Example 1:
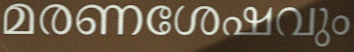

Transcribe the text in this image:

മരണശേഷവും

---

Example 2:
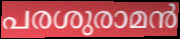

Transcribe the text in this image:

പരശുരാമൻ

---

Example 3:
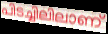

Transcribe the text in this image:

പിടച്ചിലിലാണ്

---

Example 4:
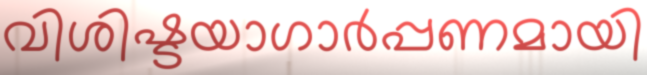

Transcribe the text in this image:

വിശിഷ്ടയാഗാർപ്പണമായി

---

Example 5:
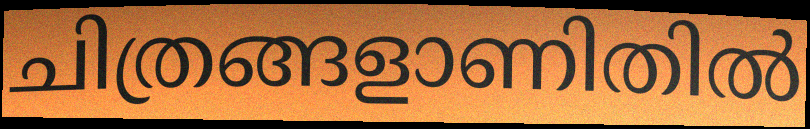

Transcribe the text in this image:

ചിത്രങ്ങളാണിതിൽ